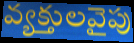
వ్యక్తులవైపు